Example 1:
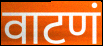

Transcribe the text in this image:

वाटणं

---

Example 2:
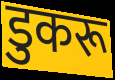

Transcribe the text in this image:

डुकरू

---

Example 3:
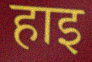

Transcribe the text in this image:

हाइ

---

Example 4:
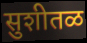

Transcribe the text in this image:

सुशीतळ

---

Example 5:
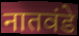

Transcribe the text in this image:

नातवंडे